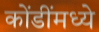
कोंडींमध्ये